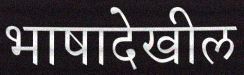
भाषादेखील